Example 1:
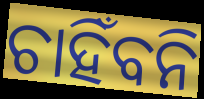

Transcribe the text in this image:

ଚାହିଁବନି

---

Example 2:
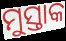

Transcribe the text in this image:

ମୁସ୍ତାକ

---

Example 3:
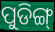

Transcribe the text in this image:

ପୁଡିଙ୍ଗ୍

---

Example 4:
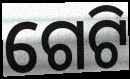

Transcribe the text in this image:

ଗେଟି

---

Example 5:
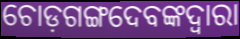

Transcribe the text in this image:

ଚୋଡ଼ଗଙ୍ଗଦେବଙ୍କଦ୍ୱାରା